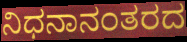
ನಿಧನಾನಂತರದ